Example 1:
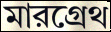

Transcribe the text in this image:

মারগ্রেথ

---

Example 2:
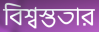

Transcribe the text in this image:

বিশ্বস্ততার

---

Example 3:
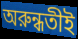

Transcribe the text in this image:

অরুন্ধতীই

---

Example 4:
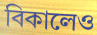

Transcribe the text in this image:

বিকালেও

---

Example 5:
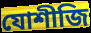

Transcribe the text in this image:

যোশীজি